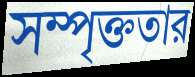
সম্পৃক্ততার